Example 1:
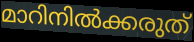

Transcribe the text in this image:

മാറിനിൽക്കരുത്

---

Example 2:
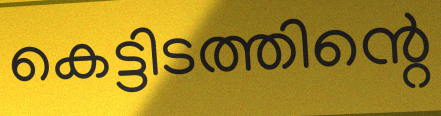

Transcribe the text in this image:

കെട്ടിടത്തിന്റെ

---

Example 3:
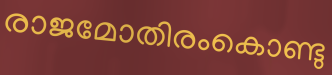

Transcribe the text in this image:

രാജമോതിരംകൊണ്ടു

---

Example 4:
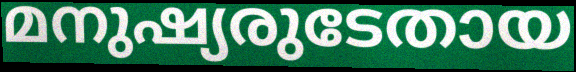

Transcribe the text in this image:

മനുഷ്യരുടേതായ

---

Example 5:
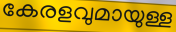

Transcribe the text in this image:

കേരളവുമായുള്ള